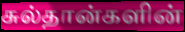
சுல்தான்களின்